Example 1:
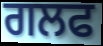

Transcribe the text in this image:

ਗਲਫ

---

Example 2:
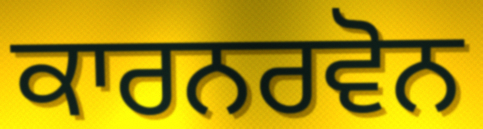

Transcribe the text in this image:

ਕਾਰਨਰਵੋਨ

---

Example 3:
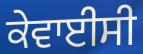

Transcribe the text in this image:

ਕੇਵਾਈਸੀ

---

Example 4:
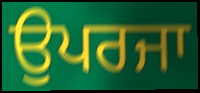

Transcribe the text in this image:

ਉਪਰਜਾ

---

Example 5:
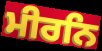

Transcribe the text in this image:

ਮੀਰਨਿ